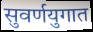
सुवर्णयुगात